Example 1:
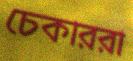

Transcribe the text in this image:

চেকাররা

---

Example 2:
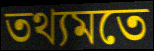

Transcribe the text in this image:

তথ্যমতে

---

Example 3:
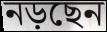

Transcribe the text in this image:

নড়ছেন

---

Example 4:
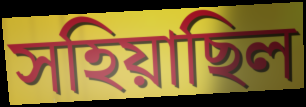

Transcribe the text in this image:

সহিয়াছিল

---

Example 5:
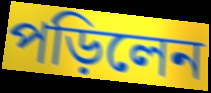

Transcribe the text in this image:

পড়িলেন